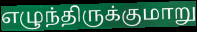
எழுந்திருக்குமாறு